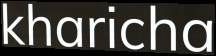
kharicha